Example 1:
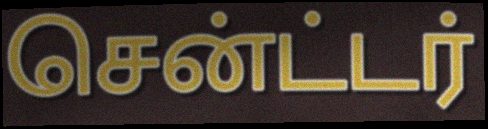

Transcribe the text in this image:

சென்ட்டர்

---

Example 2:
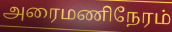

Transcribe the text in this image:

அரைமணிநேரம்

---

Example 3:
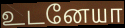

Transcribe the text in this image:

உடனேயா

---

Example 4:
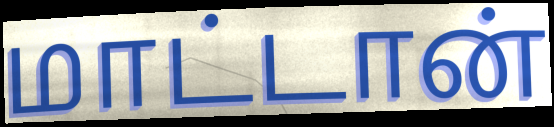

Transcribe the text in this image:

மாட்டான்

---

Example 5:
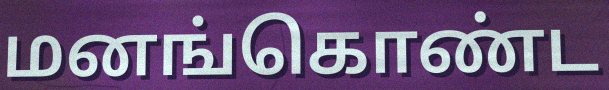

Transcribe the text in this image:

மனங்கொண்ட